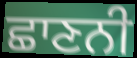
ਛਾਣਨੀ